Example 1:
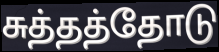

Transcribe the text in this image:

சுத்தத்தோடு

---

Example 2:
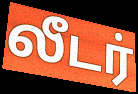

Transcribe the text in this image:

லீடர்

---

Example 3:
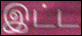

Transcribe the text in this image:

இட்ட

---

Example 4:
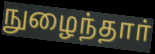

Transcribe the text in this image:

நுழைந்தார்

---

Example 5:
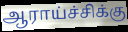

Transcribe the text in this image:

ஆராய்ச்சிக்கு